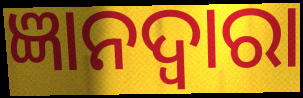
ଜ୍ଞାନଦ୍ଵାରା